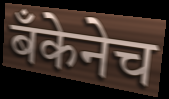
बँकेनेच